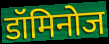
डॉमिनोज